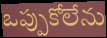
ఒప్పుకోలేను